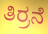
ತಿರ್ರನೆ